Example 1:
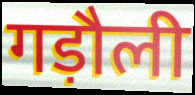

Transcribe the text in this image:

गड़ौली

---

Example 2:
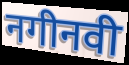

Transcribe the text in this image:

नगीनवी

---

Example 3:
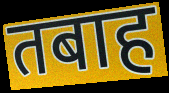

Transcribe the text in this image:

तबाह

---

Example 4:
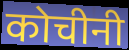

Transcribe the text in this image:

कोचीनी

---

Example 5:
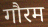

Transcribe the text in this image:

गौरम